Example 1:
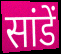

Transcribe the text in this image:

सांडें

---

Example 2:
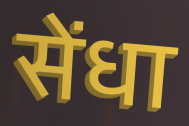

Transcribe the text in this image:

सेंधा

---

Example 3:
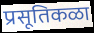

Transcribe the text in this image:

प्रसूतिकळा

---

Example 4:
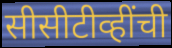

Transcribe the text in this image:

सीसीटीव्हींची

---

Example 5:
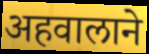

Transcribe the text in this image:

अहवालाने